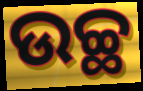
ଉଚ୍ଛ